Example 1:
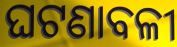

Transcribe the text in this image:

ଘଟଣାବଳୀ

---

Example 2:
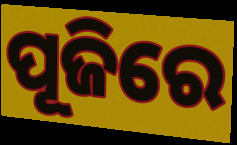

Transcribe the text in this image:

ପୂଜିରେ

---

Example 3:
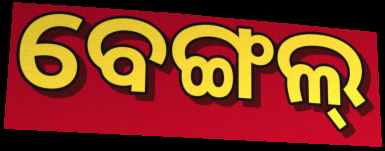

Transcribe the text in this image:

ବେଙ୍ଗଲ୍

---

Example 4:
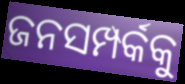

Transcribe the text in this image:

ଜନସମ୍ପର୍କକୁ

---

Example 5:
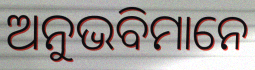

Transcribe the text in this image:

ଅନୁଭବିମାନେ